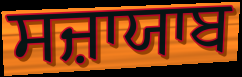
ਸਜ਼ਾਯਾਬ